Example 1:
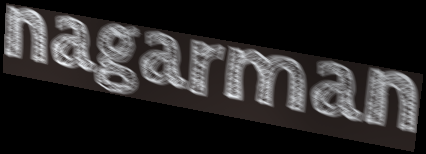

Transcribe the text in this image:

nagarman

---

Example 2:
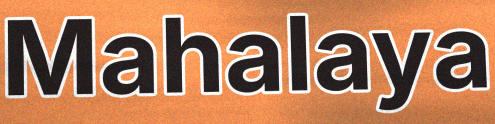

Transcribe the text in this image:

Mahalaya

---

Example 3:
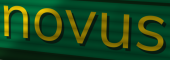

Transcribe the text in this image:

novus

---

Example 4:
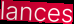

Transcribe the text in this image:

lances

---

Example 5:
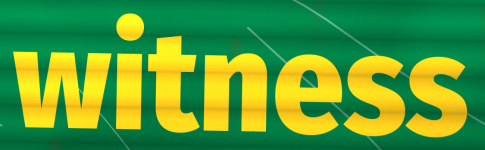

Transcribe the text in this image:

witness